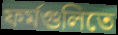
ফর্মগুলিতে